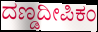
ದಣ್ಡದೀಪಿಕಂ